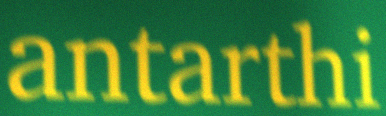
antarthi